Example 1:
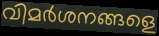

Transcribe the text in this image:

വിമർശനങ്ങളെ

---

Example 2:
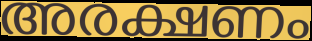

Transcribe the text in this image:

അരക്ഷണം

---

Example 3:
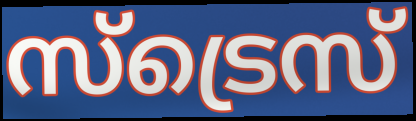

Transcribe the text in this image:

സ്ട്രെസ്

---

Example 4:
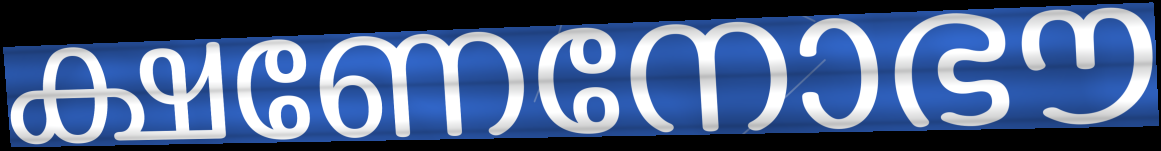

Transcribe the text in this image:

ക്ഷണേനോഭൗ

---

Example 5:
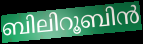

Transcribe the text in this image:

ബിലിറൂബിൻ